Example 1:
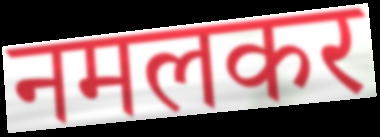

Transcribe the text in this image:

नमलकर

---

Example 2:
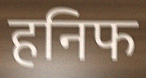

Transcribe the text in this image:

हनिफ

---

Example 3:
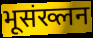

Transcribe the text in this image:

भूसंख्लन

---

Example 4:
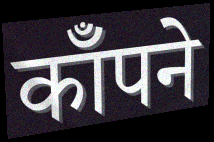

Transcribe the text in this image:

कॉँपने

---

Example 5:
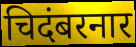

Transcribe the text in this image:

चिदंबरनार